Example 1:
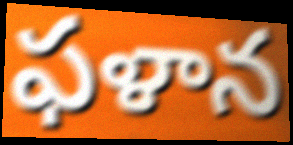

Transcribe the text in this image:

ఫళాన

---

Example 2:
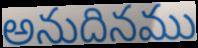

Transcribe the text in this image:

అనుదినము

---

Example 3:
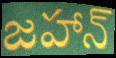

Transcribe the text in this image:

జహాన్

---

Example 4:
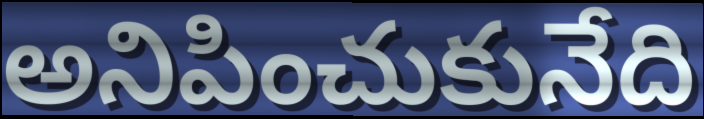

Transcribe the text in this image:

అనిపించుకునేది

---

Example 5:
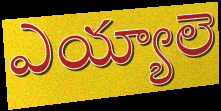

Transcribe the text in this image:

ఎయ్యాలె